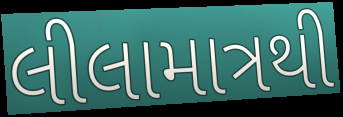
લીલામાત્રથી